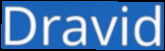
Dravid